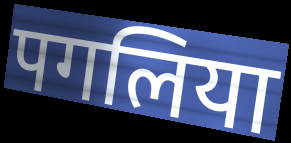
पगलिया